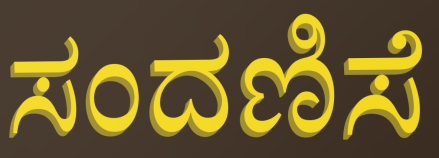
ಸಂದಣಿಸೆ